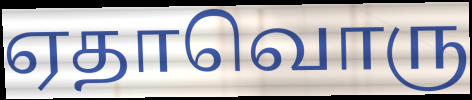
ஏதாவொரு